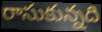
రాసుకున్నది